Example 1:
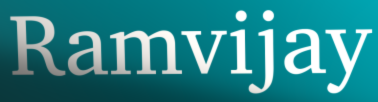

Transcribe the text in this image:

Ramvijay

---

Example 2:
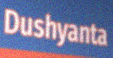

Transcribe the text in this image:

Dushyanta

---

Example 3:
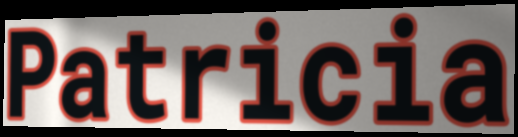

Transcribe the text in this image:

Patricia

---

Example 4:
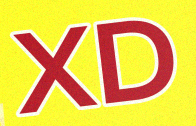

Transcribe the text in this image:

XD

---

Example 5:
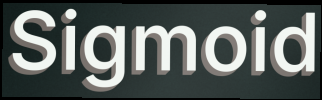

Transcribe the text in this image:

Sigmoid